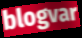
blogvar